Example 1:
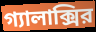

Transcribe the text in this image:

গ্যালাক্সির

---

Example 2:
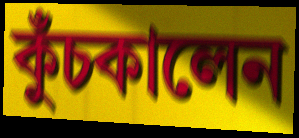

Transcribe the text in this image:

কুঁচকালেন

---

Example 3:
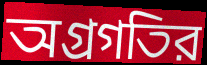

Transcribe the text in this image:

অগ্রগতির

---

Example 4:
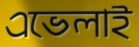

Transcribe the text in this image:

এভেলাই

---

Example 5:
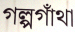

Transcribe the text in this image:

গল্পগাঁথা